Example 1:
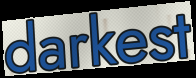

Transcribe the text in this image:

darkest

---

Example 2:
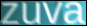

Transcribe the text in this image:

zuva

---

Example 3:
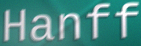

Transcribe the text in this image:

Hanff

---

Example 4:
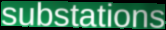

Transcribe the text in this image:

substations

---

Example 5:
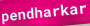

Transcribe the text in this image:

pendharkar